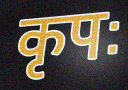
कृपः